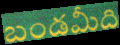
బండమీది